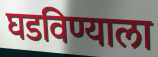
घडविण्याला